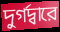
দুর্গদ্বারে